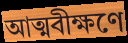
আত্মবীক্ষণে